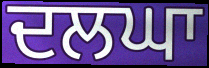
ਦਲਘਾ